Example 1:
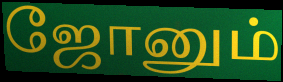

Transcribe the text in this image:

ஜோனும்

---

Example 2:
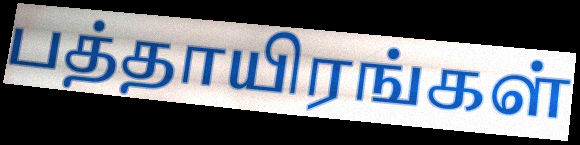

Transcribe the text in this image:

பத்தாயிரங்கள்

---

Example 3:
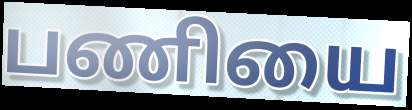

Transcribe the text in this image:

பணியை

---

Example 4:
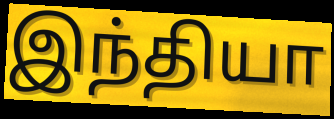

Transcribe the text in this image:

இந்தியா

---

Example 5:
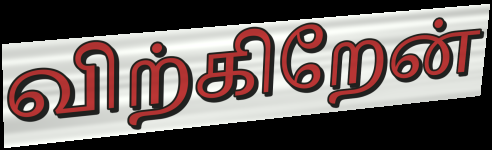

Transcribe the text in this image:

விற்கிறேன்